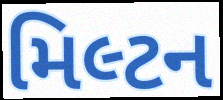
મિલ્ટન